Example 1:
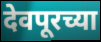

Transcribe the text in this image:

देवपूरच्या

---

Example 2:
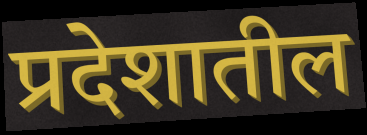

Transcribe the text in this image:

प्रदेशातील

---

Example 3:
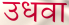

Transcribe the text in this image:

उधवा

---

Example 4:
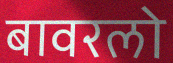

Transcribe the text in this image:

बावरलो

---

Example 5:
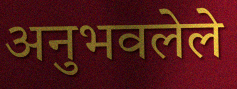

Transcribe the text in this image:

अनुभवलेले